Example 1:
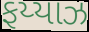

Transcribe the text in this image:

ફય્યાઝ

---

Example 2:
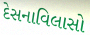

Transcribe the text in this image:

દેસનાવિલાસો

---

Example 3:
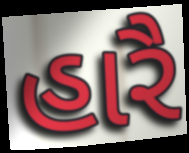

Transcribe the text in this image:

હારૈ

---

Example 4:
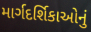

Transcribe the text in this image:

માર્ગદર્શિકાઓનું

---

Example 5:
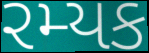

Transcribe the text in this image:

રમ્યક